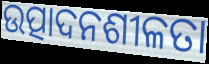
ଉତ୍ପାଦନଶୀଳତା